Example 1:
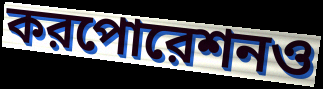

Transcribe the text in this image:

করপোরেশনও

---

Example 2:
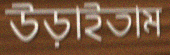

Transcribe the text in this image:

উড়াইতাম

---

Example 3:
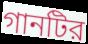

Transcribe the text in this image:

গানটির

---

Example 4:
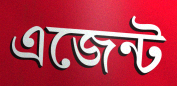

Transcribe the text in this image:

এজেন্ট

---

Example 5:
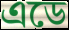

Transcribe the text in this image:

এডে